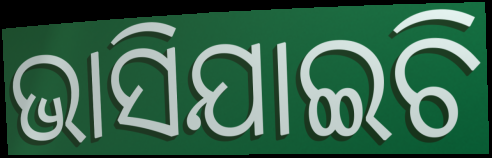
ଭାସିଯାଇଚି